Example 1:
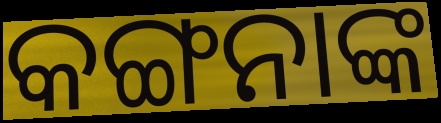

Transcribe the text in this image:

କଙ୍ଗନାଙ୍କ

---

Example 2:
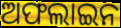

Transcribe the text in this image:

ଅଫଲାଇନ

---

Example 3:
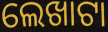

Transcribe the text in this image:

ଲେଖାଟା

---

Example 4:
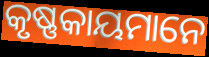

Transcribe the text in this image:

କୃଷ୍ଣକାୟମାନେ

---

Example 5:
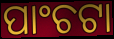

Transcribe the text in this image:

ପାଂଚଟା